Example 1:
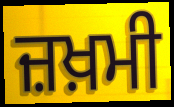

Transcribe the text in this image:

ਜ਼ਖ਼ਮੀ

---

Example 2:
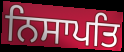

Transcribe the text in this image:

ਨਿਸਾਪਤਿ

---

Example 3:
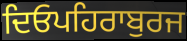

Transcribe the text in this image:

ਦਿਓਪਹਿਰਾਬੁਰਜ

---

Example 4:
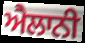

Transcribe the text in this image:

ਐਲਾਨੀ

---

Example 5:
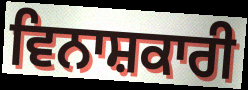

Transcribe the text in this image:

ਵਿਨਾਸ਼ਕਾਰੀ